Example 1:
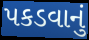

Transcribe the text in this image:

પકડવાનું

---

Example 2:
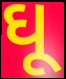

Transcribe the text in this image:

ઘૂ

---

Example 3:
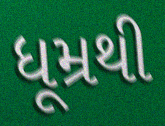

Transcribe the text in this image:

ધૂમ્રથી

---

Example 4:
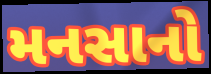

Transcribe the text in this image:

મનસાનો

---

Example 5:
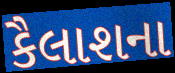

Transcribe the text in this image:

કૈલાશના